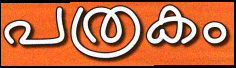
പത്രകം